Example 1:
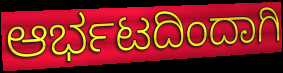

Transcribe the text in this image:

ಆರ್ಭಟದಿಂದಾಗಿ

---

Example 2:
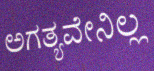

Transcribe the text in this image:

ಅಗತ್ಯವೇನಿಲ್ಲ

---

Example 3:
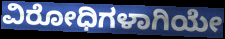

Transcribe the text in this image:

ವಿರೋಧಿಗಳಾಗಿಯೇ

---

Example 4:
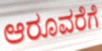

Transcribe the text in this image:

ಆರೂವರೆಗೆ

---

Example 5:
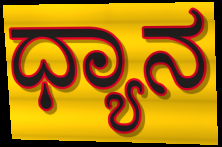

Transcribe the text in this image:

ಧ್ಯಾನ